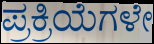
ಪ್ರಕ್ರಿಯೆಗಳೇ